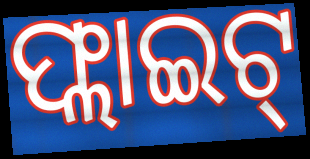
ଫ୍ଲାଇଟ୍